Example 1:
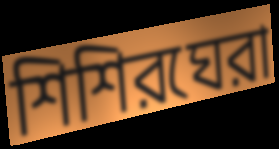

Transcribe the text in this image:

শিশিরঘেরা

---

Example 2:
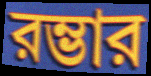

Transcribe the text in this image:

রম্ভার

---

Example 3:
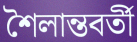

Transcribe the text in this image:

শৈলান্তবর্তী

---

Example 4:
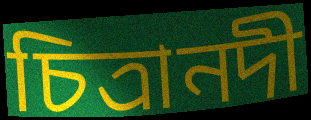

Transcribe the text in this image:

চিত্রানদী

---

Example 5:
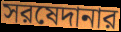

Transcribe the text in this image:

সরষেদানার